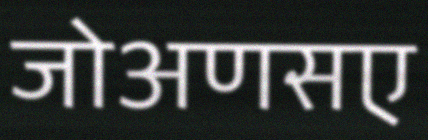
जोअणसए